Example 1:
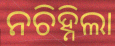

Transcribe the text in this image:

ନଚିହ୍ନିଲା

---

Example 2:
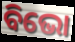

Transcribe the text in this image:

ବିଭୋ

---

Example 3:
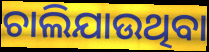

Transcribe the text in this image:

ଚାଲିଯାଉଥିବା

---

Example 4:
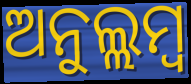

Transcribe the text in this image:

ଅନୁଲ୍ଲମ୍ବ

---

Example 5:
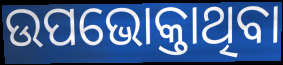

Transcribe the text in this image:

ଉପଭୋକ୍ତାଥିବା